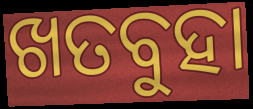
ଖତବୁହା